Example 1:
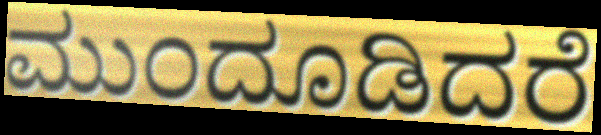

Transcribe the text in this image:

ಮುಂದೂಡಿದರೆ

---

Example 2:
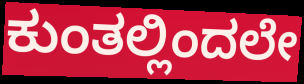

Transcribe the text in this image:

ಕುಂತಲ್ಲಿಂದಲೇ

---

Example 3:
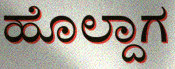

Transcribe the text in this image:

ಹೊಲ್ದಾಗ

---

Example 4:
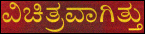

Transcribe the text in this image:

ವಿಚಿತ್ರವಾಗಿತ್ತು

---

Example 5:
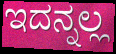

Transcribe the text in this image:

ಇದನ್ನಲ್ಲ